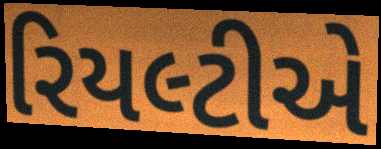
રિયલ્ટીએ